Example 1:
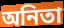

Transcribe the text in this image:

অনিতা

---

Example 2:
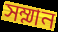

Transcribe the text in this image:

সম্মান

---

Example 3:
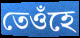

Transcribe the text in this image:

তেওঁহে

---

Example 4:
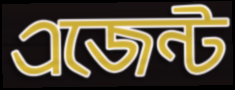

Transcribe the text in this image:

এজেন্ট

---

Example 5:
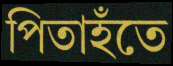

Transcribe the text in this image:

পিতাহঁতে